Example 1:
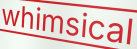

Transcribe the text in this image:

whimsical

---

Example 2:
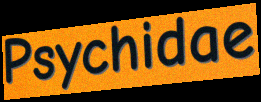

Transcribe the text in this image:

Psychidae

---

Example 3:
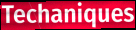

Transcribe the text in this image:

Techaniques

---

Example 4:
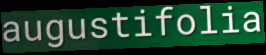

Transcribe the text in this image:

augustifolia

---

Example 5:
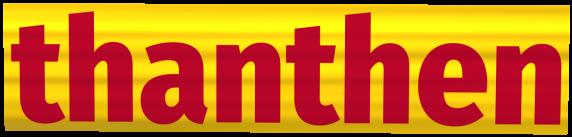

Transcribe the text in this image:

thanthen